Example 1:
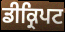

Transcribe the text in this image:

ਡੀਕ੍ਰਿਪਟ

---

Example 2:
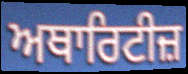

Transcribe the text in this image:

ਅਥਾਰਿਟੀਜ਼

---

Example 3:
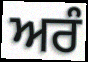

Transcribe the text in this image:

ਅਰੰ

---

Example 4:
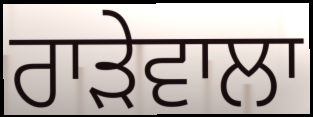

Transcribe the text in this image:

ਰਾੜੇਵਾਲਾ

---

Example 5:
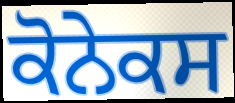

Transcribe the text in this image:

ਕੋਨੇਕਸ